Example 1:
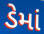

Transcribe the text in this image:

ડેમાં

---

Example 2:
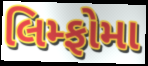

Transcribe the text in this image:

લિમ્ફોમા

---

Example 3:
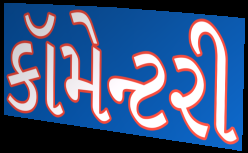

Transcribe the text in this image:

કૉમેન્ટરી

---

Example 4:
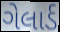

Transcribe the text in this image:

ગેલાર્ડ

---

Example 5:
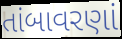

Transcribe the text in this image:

તાંબાવરણાં